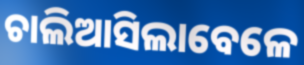
ଚାଲିଆସିଲାବେଳେ